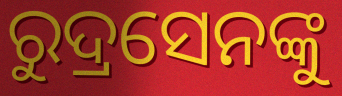
ରୁଦ୍ରସେନଙ୍କୁ